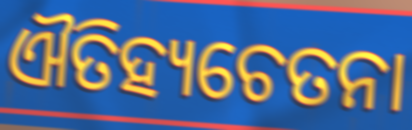
ଐତିହ୍ୟଚେତନା